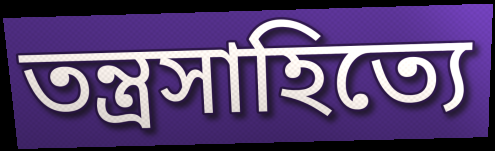
তন্ত্রসাহিত্যে